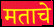
मताचे